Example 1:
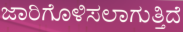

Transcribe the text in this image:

ಜಾರಿಗೊಳಿಸಲಾಗುತ್ತಿದೆ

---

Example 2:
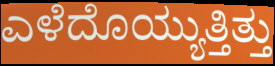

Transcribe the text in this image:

ಎಳೆದೊಯ್ಯುತ್ತಿತ್ತು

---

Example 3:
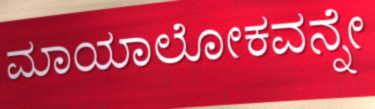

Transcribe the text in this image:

ಮಾಯಾಲೋಕವನ್ನೇ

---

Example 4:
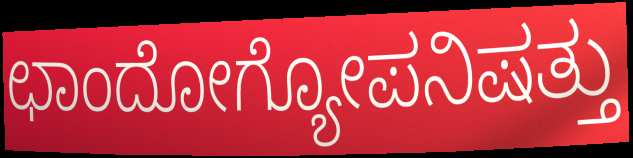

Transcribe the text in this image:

ಛಾಂದೋಗ್ಯೋಪನಿಷತ್ತು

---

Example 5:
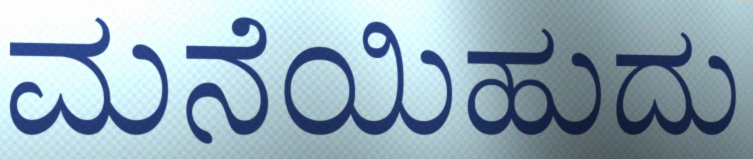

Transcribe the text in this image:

ಮನೆಯಿಹುದು